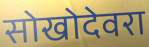
सोखोदेवरा